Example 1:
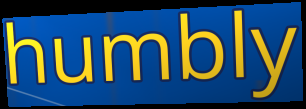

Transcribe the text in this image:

humbly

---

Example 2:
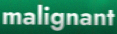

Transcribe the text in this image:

malignant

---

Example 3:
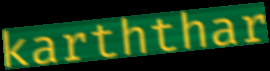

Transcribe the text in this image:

karththar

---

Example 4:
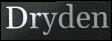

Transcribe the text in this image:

Dryden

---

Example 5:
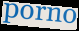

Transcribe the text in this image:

porno